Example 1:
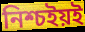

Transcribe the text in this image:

নিশ্চইয়ই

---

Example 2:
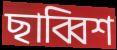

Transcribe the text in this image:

ছাব্বিশ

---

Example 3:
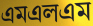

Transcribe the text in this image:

এমএলএম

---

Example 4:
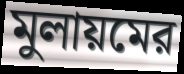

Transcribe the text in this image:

মুলায়মের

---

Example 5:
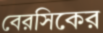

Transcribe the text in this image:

বেরসিকের